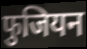
फुजियन